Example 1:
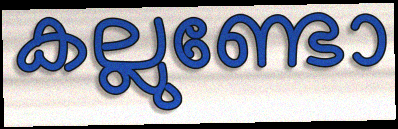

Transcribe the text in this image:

കല്ലുണ്ടോ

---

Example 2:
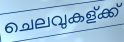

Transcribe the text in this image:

ചെലവുകള്ക്ക്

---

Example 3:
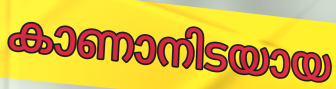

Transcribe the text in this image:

കാണാനിടയായ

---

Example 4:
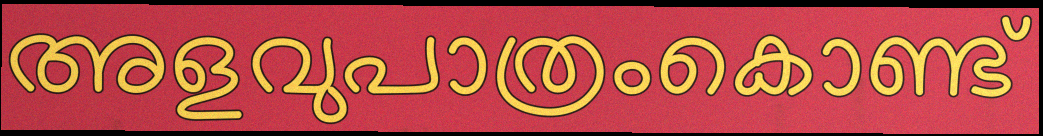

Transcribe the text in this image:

അളവുപാത്രംകൊണ്ട്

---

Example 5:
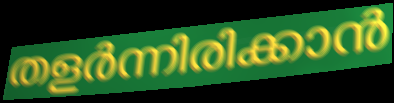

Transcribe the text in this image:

തളർന്നിരിക്കാൻ